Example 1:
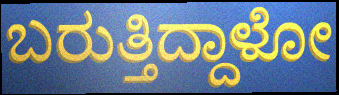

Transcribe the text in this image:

ಬರುತ್ತಿದ್ದಾಳೋ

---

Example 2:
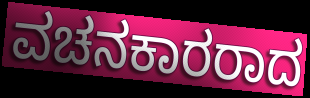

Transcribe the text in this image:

ವಚನಕಾರರಾದ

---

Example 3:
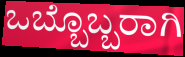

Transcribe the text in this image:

ಒಬ್ಬೊಬ್ಬರಾಗಿ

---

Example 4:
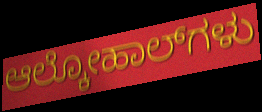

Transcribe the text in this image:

ಆಲ್ಕೋಹಾಲ್‌ಗಳು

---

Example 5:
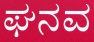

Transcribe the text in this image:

ಘನವ